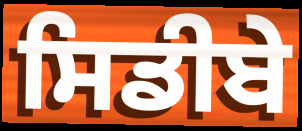
ਸਿਡੀਬੇ